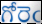
గోరెఁ